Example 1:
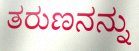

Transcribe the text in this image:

ತರುಣನನ್ನು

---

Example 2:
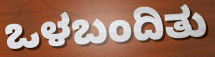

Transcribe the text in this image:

ಒಳಬಂದಿತು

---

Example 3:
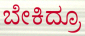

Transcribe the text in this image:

ಬೇಕಿದ್ರೂ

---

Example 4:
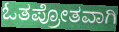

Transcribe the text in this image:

ಓತಪ್ರೋತವಾಗಿ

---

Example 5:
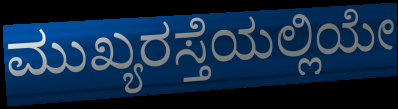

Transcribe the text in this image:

ಮುಖ್ಯರಸ್ತೆಯಲ್ಲಿಯೇ